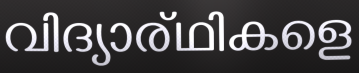
വിദ്യാര്ഥികളെ